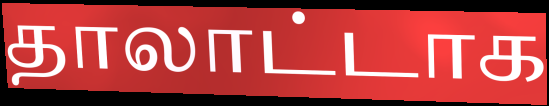
தாலாட்டாக